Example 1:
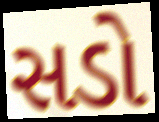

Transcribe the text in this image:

સડો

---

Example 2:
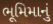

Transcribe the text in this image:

ભૂમિમાનું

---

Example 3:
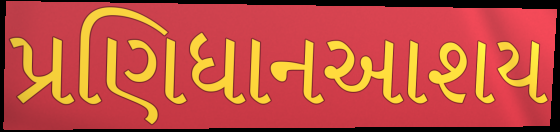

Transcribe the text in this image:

પ્રણિધાનઆશય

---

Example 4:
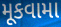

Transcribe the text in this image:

મૂકવામા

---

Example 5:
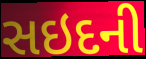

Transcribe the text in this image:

સઇદની